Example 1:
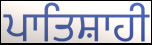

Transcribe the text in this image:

ਪਾਤਿਸ਼ਾਹੀ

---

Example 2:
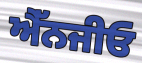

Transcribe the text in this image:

ਐੱਨਜੀਓ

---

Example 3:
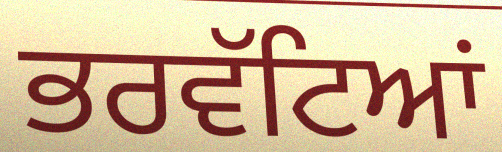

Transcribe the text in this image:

ਭਰਵੱਟਿਆਂ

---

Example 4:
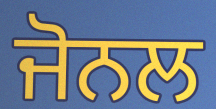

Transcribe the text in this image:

ਜੋਨਲ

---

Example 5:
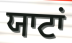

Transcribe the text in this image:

ਯਾਟਾਂ